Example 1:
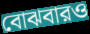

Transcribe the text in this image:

বোঝবারও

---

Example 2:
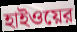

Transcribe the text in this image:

হাইওয়ের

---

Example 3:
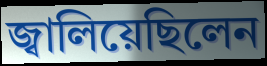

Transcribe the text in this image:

জ্বালিয়েছিলেন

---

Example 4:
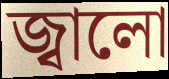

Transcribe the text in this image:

জ্বালো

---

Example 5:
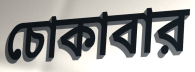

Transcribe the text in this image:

চোকাবার